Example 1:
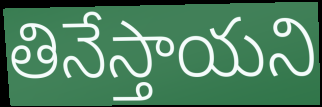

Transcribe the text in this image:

తినేస్తాయని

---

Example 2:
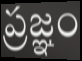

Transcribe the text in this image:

ప్రజ్ఞం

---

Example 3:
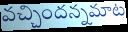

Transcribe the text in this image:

వచ్చిందన్నమాట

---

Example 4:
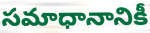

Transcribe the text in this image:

సమాధానానికీ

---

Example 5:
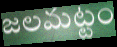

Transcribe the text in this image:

జలమట్టం